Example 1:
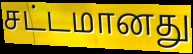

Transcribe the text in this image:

சட்டமானது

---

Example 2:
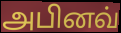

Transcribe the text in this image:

அபினவ்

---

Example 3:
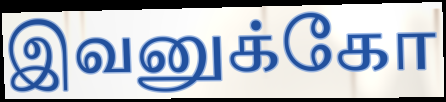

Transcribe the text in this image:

இவனுக்கோ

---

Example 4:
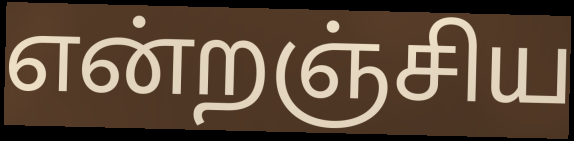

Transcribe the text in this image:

என்றஞ்சிய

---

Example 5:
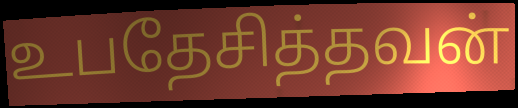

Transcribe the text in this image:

உபதேசித்தவன்